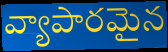
వ్యాపారమైన